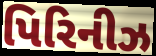
પિરિનીઝ